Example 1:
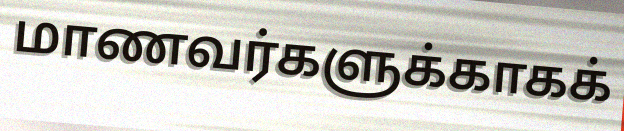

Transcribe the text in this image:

மாணவர்களுக்காகக்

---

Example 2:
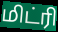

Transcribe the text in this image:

மிட்ரி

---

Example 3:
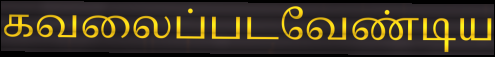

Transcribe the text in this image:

கவலைப்படவேண்டிய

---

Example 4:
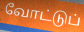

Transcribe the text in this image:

வோட்டுப்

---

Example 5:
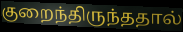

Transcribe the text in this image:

குறைந்திருந்ததால்